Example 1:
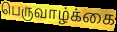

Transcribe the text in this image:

பெருவாழ்க்கை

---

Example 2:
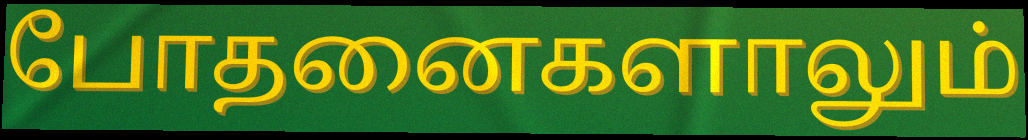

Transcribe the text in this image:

போதனைகளாலும்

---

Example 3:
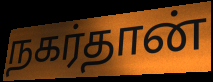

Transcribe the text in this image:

நகர்தான்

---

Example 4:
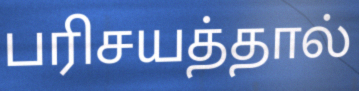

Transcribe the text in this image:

பரிசயத்தால்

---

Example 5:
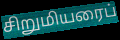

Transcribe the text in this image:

சிறுமியரைப்